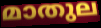
മാതുല